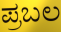
ಪ್ರಬಲ